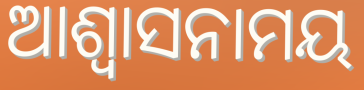
ଆଶ୍ୱାସନାମୟ